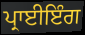
ਪ੍ਰਾਈਇੰਗ